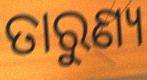
ତାରୁଣ୍ୟ